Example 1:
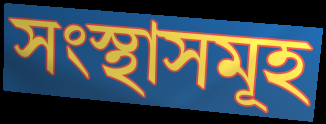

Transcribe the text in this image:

সংস্থাসমূহ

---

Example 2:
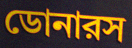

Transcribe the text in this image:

ডোনারস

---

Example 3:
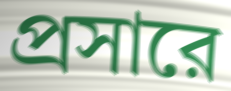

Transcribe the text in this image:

প্রসারে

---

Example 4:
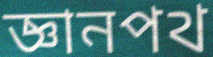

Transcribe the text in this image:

জ্ঞানপথ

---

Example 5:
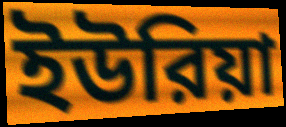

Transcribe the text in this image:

ইউরিয়া